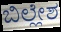
ಬಿಲ್ಲೇಶ